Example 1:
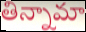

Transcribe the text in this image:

తిన్నామా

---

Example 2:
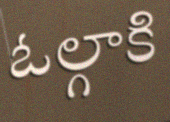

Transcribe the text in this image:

ఓల్గాకి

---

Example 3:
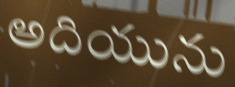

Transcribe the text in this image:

అదియును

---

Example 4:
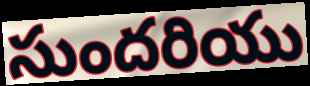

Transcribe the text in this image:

సుందరియు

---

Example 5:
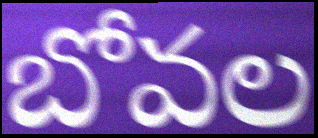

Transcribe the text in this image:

బోవల